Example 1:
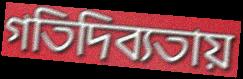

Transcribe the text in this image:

গতিদিব্যতায়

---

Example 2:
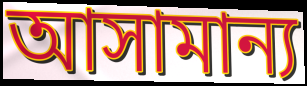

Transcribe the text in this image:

আসামান্য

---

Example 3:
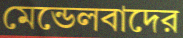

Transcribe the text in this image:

মেন্ডেলবাদের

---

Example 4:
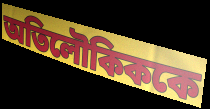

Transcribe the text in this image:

অতিলৌকিককে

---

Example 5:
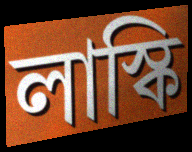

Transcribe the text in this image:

লাস্কি